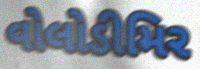
વોલોડીમિર